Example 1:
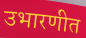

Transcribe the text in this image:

उभारणीत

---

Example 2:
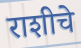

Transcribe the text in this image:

राशीचे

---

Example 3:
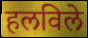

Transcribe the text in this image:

हलविले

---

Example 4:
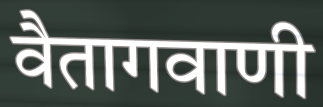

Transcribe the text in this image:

वैतागवाणी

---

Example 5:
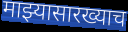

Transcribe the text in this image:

माझ्यासारख्याच